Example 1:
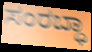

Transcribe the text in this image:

ಸಂರಬ್ಧಾ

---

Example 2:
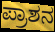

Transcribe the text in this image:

ಪ್ರಾಶನ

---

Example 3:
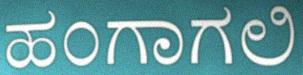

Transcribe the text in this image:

ಹಂಗಾಗಲಿ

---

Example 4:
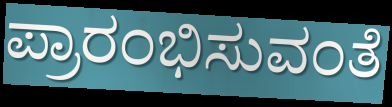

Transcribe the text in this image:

ಪ್ರಾರಂಭಿಸುವಂತೆ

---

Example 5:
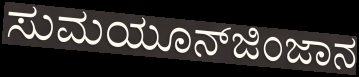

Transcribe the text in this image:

ಸುಮಯೂನ್‍ಜಿಂಜಾನ